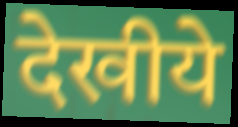
देखीये